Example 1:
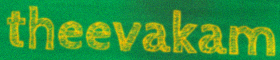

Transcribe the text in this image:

theevakam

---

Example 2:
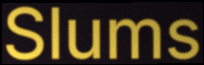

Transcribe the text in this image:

Slums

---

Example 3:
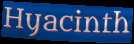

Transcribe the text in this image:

Hyacinth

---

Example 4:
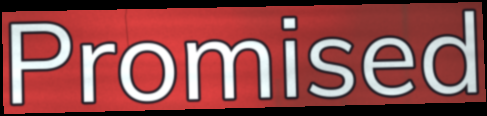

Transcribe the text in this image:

Promised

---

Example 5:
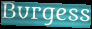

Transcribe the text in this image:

Burgess